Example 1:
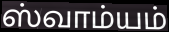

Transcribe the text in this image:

ஸ்வாம்யம்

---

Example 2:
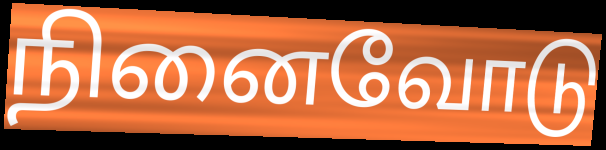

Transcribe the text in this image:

நினைவோடு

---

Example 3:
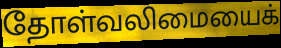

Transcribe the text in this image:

தோள்வலிமையைக்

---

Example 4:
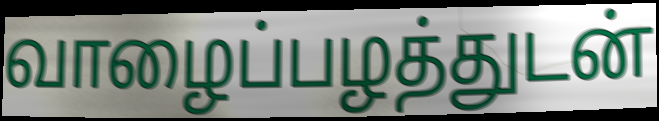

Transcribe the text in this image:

வாழைப்பழத்துடன்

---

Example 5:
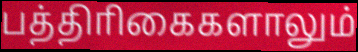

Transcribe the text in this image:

பத்திரிகைகளாலும்